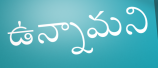
ఉన్నామని